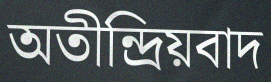
অতীন্দ্রিয়বাদ